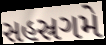
સહસ્રગમે